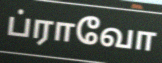
ப்ராவோ